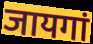
जायगां